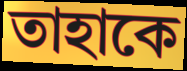
তাহাকে